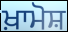
ਖ਼ਾਮੋਸ਼